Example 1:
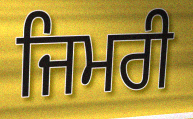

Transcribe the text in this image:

ਜਿਮਰੀ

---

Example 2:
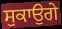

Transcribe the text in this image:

ਸੁਕਾਉਗੇ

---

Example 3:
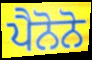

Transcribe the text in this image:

ਪੈਨੋਨੋ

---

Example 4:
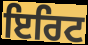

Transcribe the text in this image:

ਇਰਿਟ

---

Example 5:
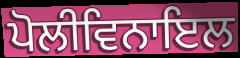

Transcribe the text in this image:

ਪੋਲੀਵਿਨਾਇਲ